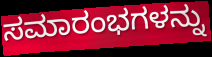
ಸಮಾರಂಭಗಳನ್ನು